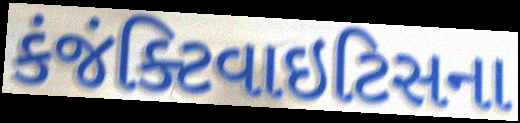
કંજંક્ટિવાઇટિસના